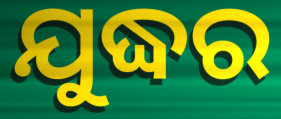
ଯୁଦ୍ଧର